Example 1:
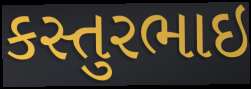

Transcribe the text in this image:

કસ્તુરભાઇ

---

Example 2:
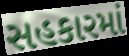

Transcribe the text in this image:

સહકારમાં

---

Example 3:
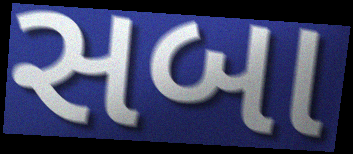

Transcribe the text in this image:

સબા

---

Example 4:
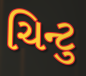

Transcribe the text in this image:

ચિન્ટુ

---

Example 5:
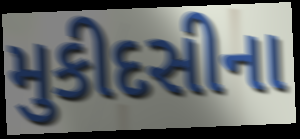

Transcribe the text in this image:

મુકીદસીના